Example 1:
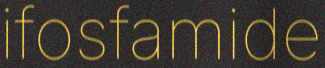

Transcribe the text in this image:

ifosfamide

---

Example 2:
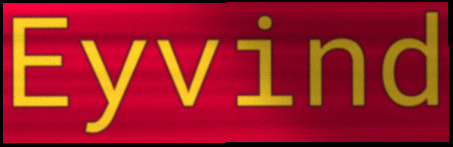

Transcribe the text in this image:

Eyvind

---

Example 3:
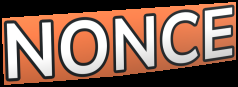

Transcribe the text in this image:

NONCE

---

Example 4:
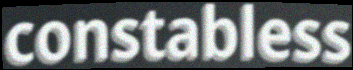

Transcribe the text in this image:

constabless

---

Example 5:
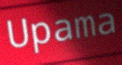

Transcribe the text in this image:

Upama